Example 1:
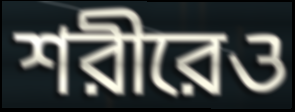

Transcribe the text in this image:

শরীরেও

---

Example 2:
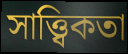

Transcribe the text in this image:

সাত্ত্বিকতা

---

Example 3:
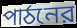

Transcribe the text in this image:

পাঠনের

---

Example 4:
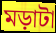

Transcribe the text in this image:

মড়াটা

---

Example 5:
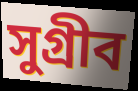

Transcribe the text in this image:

সুগ্রীব